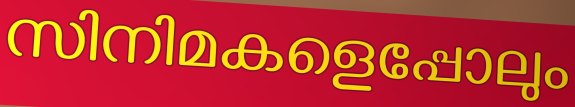
സിനിമകളെപ്പോലും